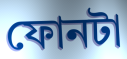
ফোনটা